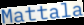
Mattala